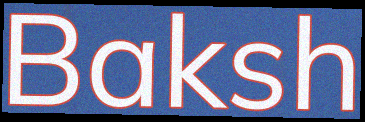
Baksh